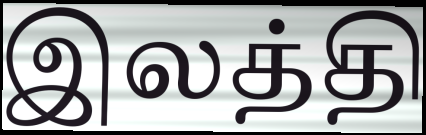
இலத்தி